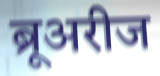
ब्रूअरीज